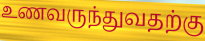
உணவருந்துவதற்கு